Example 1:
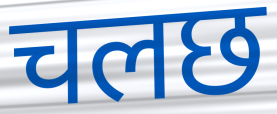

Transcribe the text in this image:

चलछ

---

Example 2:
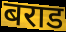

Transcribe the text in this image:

बराड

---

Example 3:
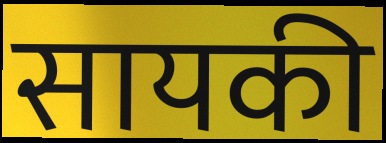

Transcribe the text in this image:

सायकी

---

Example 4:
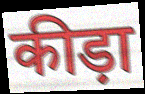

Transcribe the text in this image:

कीड़ा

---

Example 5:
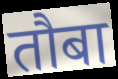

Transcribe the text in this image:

तौबा